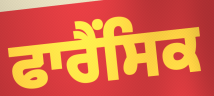
ਫਾਰੈਂਸਿਕ